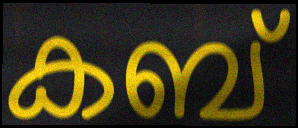
കബ്